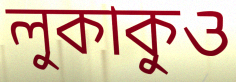
লুকাকুও